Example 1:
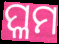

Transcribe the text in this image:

ପ୍ଳମ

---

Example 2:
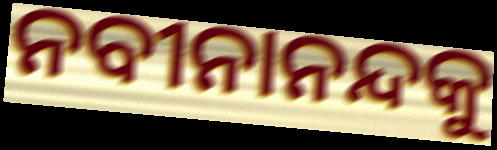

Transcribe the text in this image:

ନବୀନାନନ୍ଦକୁ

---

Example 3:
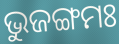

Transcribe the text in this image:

ଭୁଜଙ୍ଗମଃ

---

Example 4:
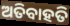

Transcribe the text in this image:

ଅତିବାହତି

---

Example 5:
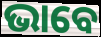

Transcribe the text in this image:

ଭାବେ